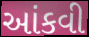
આંકવી